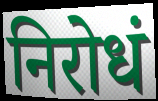
निरोधं